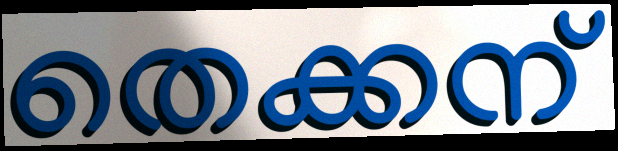
തെക്കന്